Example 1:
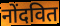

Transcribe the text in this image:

नोंदवित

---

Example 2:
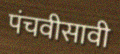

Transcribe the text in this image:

पंचवीसावी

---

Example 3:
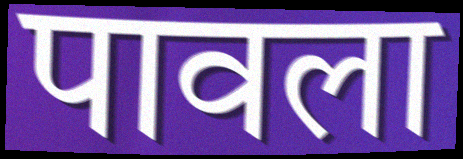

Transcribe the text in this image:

पावला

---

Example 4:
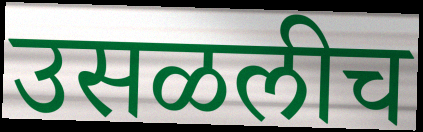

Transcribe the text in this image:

उसळलीच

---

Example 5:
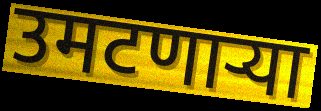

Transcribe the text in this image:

उमटणाऱ्या